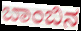
ಬಾಂಬಿನ